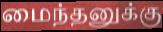
மைந்தனுக்கு